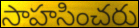
సాహసించరు